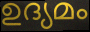
ഉദ്യമം